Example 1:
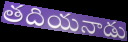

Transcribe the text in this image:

తదియనాడు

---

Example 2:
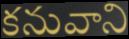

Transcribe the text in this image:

కనువాని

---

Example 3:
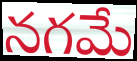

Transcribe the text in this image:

నగమే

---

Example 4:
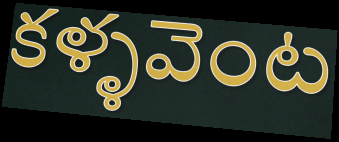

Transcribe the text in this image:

కళ్ళవెంట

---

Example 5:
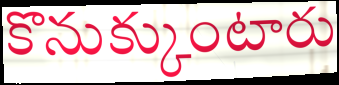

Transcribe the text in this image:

కొనుక్కుంటారు